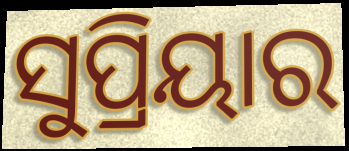
ସୁପ୍ରିୟାର